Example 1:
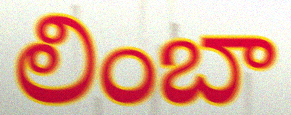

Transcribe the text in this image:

లింబా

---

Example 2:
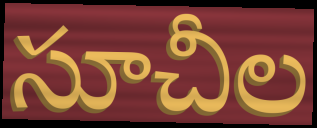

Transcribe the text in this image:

సూచీల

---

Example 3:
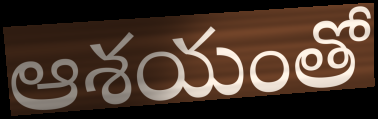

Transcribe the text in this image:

ఆశయంతో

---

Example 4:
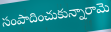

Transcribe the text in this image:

సంపాదించుకున్నారామె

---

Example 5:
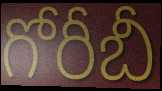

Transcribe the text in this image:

గోరీబీ